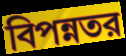
বিপন্নতর